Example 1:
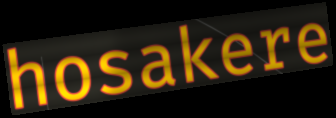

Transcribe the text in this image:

hosakere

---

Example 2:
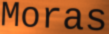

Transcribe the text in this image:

Moras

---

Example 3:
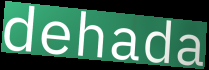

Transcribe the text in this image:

dehada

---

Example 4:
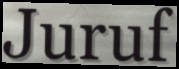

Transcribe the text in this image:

Juruf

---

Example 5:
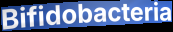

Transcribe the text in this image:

Bifidobacteria